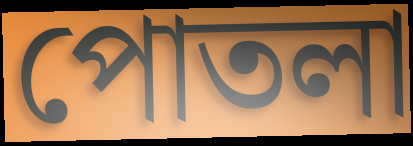
পোতলা